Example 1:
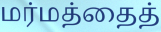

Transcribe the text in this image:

மர்மத்தைத்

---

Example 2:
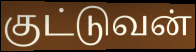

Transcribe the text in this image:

குட்டுவன்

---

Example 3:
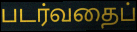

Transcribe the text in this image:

படர்வதைப்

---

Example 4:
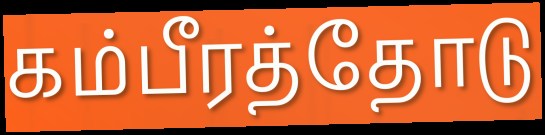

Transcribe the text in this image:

கம்பீரத்தோடு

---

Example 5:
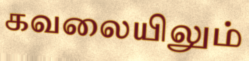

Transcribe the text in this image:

கவலையிலும்